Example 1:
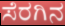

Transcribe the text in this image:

ಸೆರಗಿನ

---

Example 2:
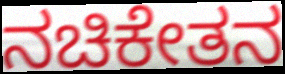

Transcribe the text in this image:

ನಚಿಕೇತನ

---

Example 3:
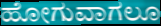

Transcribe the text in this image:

ಹೋಗುವಾಗಲೂ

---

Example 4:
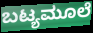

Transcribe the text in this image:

ಬಟ್ಯಮೂಲೆ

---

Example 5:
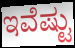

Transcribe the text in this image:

ಇವೆಷ್ಟು